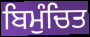
ਬਿਮੁੰਚਿਤ